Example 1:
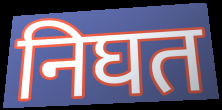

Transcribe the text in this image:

निघत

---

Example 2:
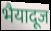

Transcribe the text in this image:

भैयादूज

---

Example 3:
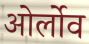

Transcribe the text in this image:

ओर्लोव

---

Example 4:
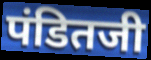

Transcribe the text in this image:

पंडितजी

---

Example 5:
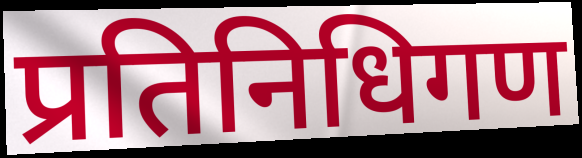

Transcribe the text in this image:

प्रतिनिधिगण